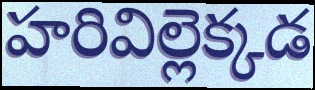
హరివిల్లెక్కడ